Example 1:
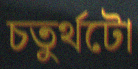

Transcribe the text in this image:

চতুৰ্থটো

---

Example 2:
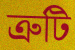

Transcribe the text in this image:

ত্ৰুটি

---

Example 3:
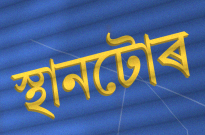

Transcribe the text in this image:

স্থানটোৰ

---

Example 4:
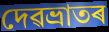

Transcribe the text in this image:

দেৱভ্ৰাতৰ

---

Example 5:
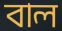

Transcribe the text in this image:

বাল